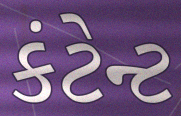
કંટેન્ટ